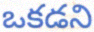
ఒకడని